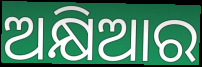
ଅକ୍ଷିଆର